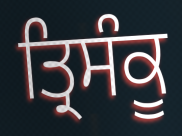
ਤ੍ਰਿਸੰਕੂ